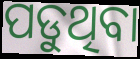
ପଡୁଥିବା